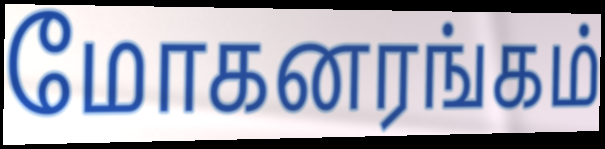
மோகனரங்கம்